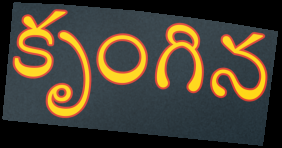
కృంగిన